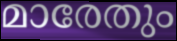
മാരേതും